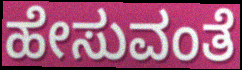
ಹೇಸುವಂತೆ